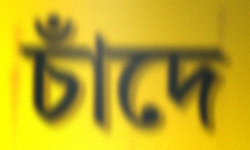
চাঁদে